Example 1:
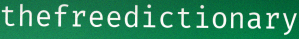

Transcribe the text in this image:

thefreedictionary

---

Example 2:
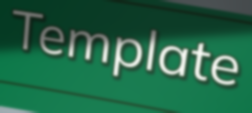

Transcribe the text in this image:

Template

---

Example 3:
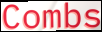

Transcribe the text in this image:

Combs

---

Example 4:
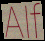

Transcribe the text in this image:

Alf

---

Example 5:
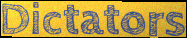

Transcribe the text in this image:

Dictators